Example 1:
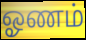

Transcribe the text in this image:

ஓணம்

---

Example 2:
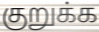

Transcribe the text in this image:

குறுக்க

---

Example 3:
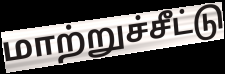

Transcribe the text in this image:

மாற்றுச்சீட்டு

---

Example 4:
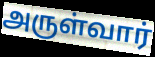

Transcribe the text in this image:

அருள்வார்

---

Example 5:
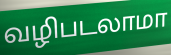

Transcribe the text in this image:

வழிபடலாமா